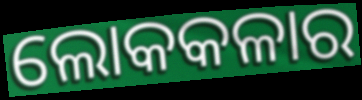
ଲୋକକଳାର